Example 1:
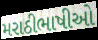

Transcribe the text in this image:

મરાઠીભાષીઓ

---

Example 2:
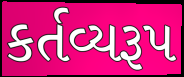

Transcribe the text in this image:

કર્તવ્યરૂપ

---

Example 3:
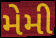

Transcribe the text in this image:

મેમી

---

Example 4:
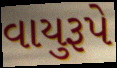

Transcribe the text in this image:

વાયુરૂપે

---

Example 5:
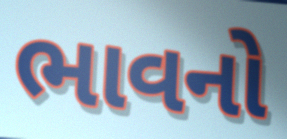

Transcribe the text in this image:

ભાવનો